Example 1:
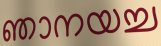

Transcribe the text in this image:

ഞാനയച്ച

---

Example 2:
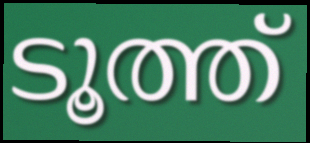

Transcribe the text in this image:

ടൂത്ത്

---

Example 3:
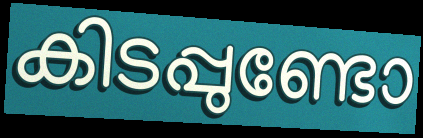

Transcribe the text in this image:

കിടപ്പുണ്ടോ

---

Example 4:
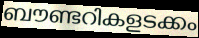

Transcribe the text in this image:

ബൗണ്ടറികളടക്കം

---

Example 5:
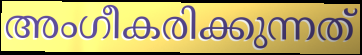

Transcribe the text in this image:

അംഗീകരിക്കുന്നത്